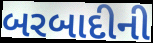
બરબાદીની